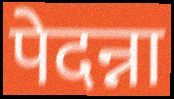
पेदन्ना